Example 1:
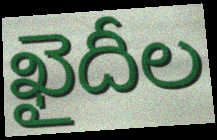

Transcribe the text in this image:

ఖైదీల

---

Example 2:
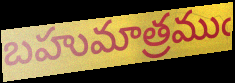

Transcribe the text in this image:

బహుమాత్రముఁ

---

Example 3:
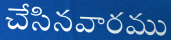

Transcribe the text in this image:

చేసినవారము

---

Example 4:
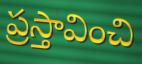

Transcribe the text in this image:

ప్రస్తావించి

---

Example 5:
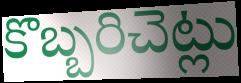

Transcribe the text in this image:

కొబ్బరిచెట్లు